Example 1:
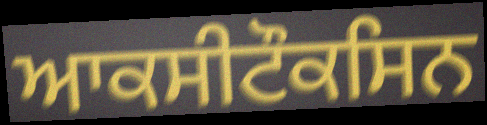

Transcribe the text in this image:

ਆਕਸੀਟੌਕਸਿਨ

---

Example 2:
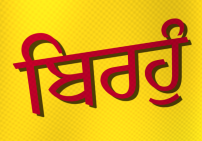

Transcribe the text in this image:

ਬਿਰਹੁੰ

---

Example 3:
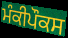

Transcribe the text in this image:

ਮੰਕੀਪੌਕਸ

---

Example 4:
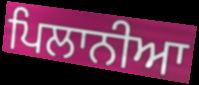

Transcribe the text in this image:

ਪਿਲਾਨੀਆ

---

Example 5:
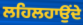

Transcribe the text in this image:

ਲਹਿਲਹਾਉਂਦੇ